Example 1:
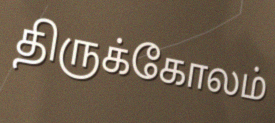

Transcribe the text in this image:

திருக்கோலம்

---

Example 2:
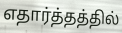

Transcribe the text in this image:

எதார்த்தத்தில்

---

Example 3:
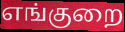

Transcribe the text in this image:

எங்குறை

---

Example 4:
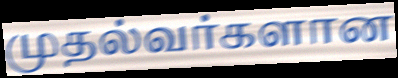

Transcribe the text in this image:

முதல்வர்களான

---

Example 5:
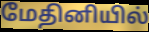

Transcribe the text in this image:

மேதினியில்